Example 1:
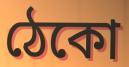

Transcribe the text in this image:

ঠেকো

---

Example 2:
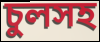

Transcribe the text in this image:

চুলসহ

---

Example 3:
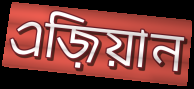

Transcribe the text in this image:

এজ়িয়ান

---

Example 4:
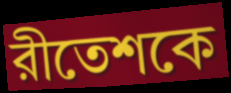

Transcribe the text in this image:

রীতেশকে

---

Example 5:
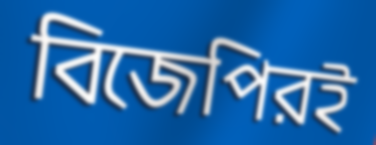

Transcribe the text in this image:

বিজেপিরই